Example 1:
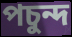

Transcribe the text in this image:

পচুন্দ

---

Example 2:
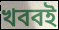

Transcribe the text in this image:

খববই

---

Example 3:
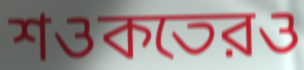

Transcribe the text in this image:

শওকতেরও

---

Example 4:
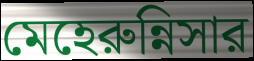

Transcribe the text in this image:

মেহেরুন্নিসার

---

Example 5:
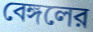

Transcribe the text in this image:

বেঙ্গলের